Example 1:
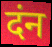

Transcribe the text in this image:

दंन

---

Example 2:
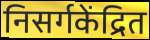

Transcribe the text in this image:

निसर्गकेंद्रित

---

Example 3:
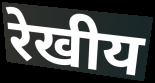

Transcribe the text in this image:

रेखीय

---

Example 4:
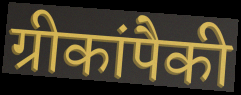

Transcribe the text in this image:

ग्रीकांपैकी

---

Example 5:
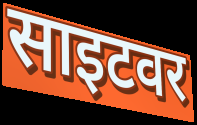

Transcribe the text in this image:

साइटवर